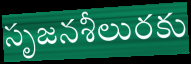
సృజనశీలురకు